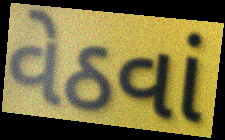
વેઠવાં